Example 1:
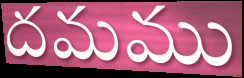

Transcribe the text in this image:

దమము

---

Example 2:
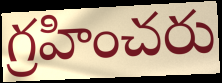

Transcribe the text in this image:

గ్రహించరు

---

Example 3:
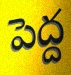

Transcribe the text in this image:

పెద్ద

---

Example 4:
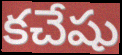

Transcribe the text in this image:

కచేషు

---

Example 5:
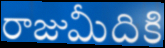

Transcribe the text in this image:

రాజుమీదికి